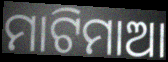
ମାଟିମାଆ